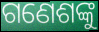
ଗଣେଶଙ୍କୁ